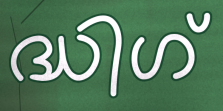
ദ്ധിഗ്